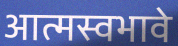
आत्मस्वभावे